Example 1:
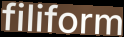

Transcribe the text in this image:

filiform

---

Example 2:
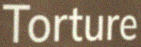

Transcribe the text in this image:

Torture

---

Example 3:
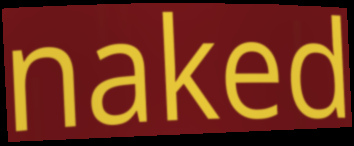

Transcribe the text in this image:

naked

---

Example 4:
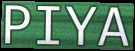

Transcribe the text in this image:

PIYA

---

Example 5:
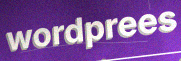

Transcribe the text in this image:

wordprees